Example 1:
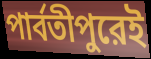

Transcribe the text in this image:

পার্বতীপুরেই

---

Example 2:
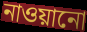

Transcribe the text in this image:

নাওয়ানো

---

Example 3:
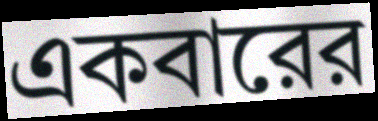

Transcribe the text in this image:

একবারের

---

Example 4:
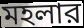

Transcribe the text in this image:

মহলার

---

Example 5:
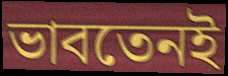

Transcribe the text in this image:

ভাবতেনই